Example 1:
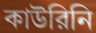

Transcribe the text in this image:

কাউরিনি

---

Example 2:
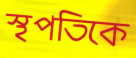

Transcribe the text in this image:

স্থপতিকে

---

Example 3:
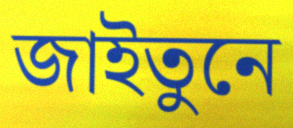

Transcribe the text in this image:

জাইতুনে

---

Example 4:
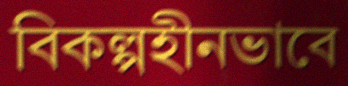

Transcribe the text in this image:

বিকল্পহীনভাবে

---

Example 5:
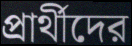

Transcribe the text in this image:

প্রার্থীদের